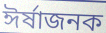
ঈর্ষাজনক